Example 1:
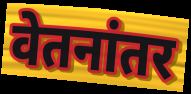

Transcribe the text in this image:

वेतनांतर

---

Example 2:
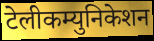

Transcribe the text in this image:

टेलीकम्युनिकेशन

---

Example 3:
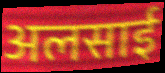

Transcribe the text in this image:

अलसाई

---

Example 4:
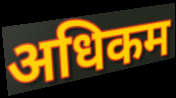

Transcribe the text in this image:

अधिकम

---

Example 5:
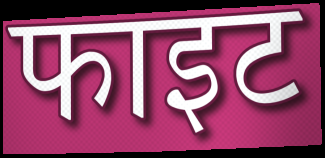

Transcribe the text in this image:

फाइट